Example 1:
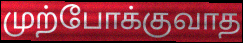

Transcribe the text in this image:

முற்போக்குவாத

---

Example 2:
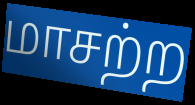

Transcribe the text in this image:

மாசற்ற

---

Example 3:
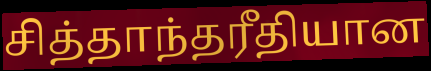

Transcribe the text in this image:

சித்தாந்தரீதியான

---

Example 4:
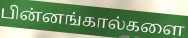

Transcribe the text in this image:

பின்னங்கால்களை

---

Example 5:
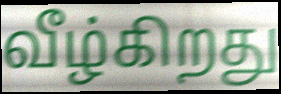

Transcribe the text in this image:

வீழ்கிறது